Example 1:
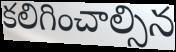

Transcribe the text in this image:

కలిగించాల్సిన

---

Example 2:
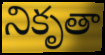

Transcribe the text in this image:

నికృతా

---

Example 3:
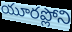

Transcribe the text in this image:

యూరప్లోని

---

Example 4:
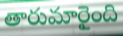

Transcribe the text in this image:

తారుమారైంది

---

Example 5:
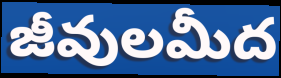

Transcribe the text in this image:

జీవులమీద